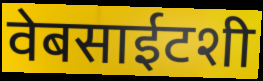
वेबसाईटशी